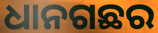
ଧାନଗଛର